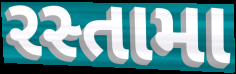
રસ્તામા